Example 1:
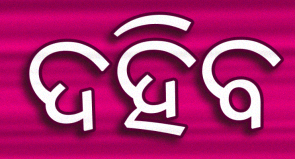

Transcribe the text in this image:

ଦହିବ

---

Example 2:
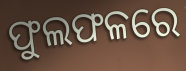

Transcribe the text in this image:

ଫୁଲଫଳରେ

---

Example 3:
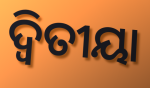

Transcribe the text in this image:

ଦ୍ୱିତୀୟା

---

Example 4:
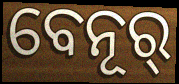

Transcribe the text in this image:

ବେନୂର୍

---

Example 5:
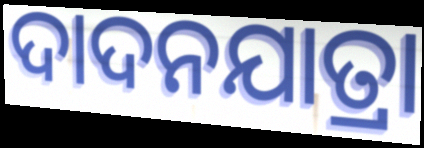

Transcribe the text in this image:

ଦାଦନଯାତ୍ରା